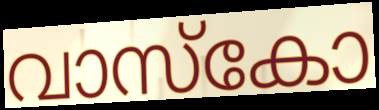
വാസ്കോ